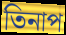
তিনাপ